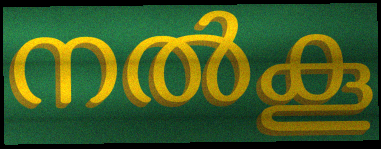
നൽകൂ